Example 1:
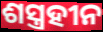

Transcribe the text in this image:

ଶସ୍ତ୍ରହୀନ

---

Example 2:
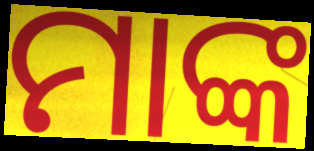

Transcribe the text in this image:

ମାଙ୍କ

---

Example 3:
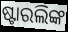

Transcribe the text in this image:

ଷ୍ଟାରଲିଙ୍କ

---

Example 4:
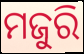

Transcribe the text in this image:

ମଜୁରି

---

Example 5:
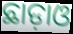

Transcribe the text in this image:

ଛାଡ଼ାଓ